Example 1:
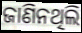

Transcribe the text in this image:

ଜାଣିନଥିଲି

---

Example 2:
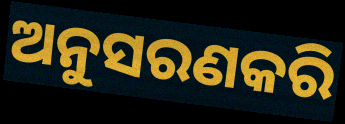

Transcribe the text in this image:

ଅନୁସରଣକରି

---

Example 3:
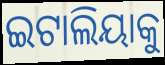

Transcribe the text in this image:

ଇଟାଲିୟାକୁ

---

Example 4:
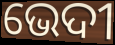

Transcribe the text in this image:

ଭେଦୀ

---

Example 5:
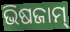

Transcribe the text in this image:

ଭିଷଜାମ୍